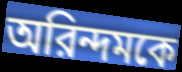
অরিন্দমকে